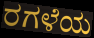
ರಗಳೆಯ